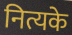
नित्यके